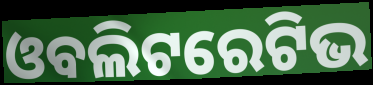
ଓବଲିଟରେଟିଭ